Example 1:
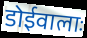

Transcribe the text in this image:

डोईवालाः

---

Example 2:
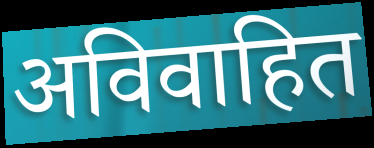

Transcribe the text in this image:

अविवाहित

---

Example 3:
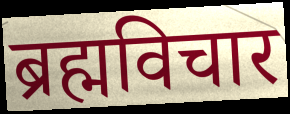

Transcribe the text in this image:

ब्रह्मविचार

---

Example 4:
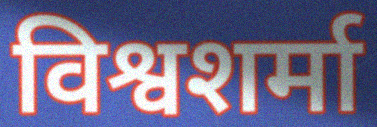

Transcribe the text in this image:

विश्वशर्मा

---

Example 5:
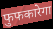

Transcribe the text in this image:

फुफकारेगा